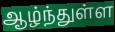
ஆழ்ந்துள்ள